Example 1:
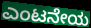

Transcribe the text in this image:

ಎಂಟನೇಯ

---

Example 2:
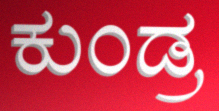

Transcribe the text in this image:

ಕುಂಡ್ರ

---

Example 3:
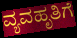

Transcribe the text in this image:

ವ್ಯವಹೃತಿಗೆ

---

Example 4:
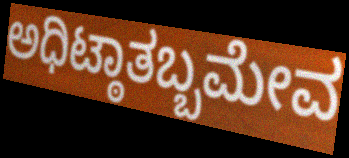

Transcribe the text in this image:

ಅಧಿಟ್ಠಾತಬ್ಬಮೇವ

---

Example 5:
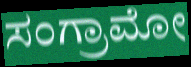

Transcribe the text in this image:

ಸಂಗ್ರಾಮೋ